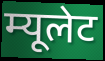
म्यूलेट